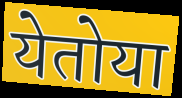
येतोया